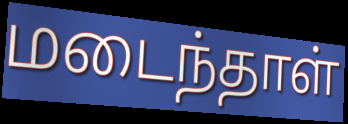
மடைந்தாள்